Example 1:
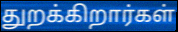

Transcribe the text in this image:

துறக்கிறார்கள்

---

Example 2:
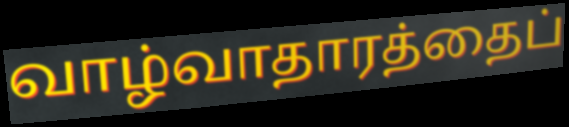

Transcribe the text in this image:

வாழ்வாதாரத்தைப்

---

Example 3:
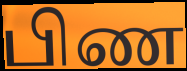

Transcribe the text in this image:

பிண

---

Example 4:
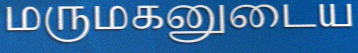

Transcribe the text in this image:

மருமகனுடைய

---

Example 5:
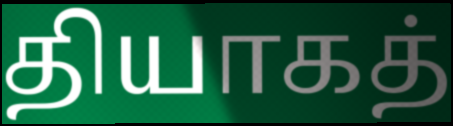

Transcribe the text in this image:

தியாகத்